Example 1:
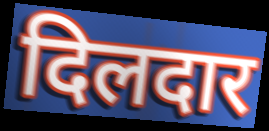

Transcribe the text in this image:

दिलदार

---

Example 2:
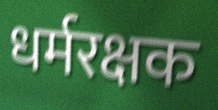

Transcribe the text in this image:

धर्मरक्षक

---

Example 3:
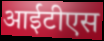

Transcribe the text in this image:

आईटीएस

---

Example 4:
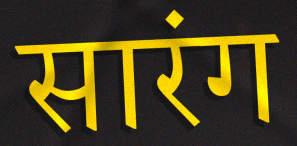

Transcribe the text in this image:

सारंग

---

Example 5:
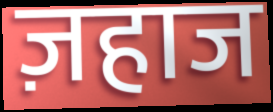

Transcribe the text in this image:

ज़हाज